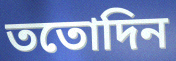
ততোদিন